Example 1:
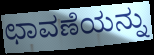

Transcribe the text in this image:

ಛಾವಣೆಯನ್ನು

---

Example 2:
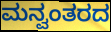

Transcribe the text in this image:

ಮನ್ವಂತರದ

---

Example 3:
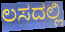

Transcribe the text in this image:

ಲಸದಲ್ಲಿ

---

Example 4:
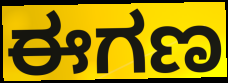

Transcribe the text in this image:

ಈಗಣ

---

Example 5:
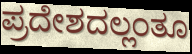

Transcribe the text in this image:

ಪ್ರದೇಶದಲ್ಲಂತೂ